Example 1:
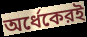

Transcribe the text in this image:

অর্ধেকেরই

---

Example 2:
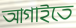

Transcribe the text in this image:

আগাইতে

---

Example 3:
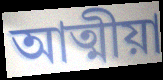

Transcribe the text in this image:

আত্মীয়া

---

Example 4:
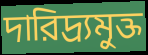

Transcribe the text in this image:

দারিদ্র্যমুক্ত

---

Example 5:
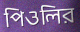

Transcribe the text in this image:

পিওলির